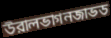
উরালভাগনজাভড